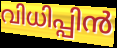
വിധിപ്പിൻ